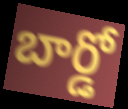
బార్డో